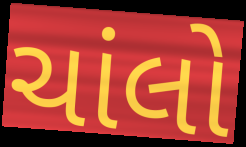
ચાંલો